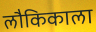
लौकिकाला